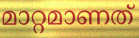
മാറ്റമാണത്